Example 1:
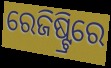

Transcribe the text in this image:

ରେଜିଷ୍ଟ୍ରିରେ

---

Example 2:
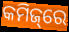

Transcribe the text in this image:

କମିଜ୍‌ରେ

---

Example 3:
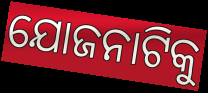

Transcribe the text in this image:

ଯୋଜନାଟିକୁ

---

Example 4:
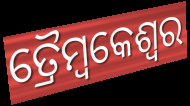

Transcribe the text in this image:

ତ୍ରୈମ୍ବକେଶ୍ୱର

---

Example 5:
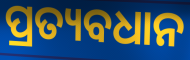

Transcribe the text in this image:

ପ୍ରତ୍ୟବଧାନ